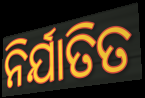
ନିର୍ଯାତିତ